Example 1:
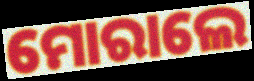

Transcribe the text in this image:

ମୋରାଲେ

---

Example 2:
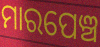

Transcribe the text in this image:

ମାରପେଞ୍ଚ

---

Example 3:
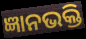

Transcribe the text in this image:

ଜ୍ଞାନଭକ୍ତି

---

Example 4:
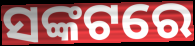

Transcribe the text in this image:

ସଙ୍କଟରେ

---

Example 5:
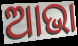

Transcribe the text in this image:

ଆଭା